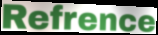
Refrence